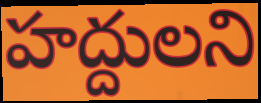
హద్దులని